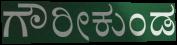
ಗೌರೀಕುಂಡ